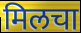
मिलचा